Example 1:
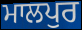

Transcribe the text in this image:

ਮਾਲਪੁਰ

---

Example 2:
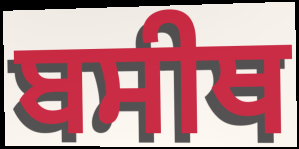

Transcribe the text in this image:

ਬਸੀਥ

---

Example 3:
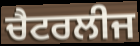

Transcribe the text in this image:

ਚੈਟਰਲੀਜ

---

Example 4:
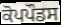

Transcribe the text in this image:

ਕੋਪਪੌਡਸ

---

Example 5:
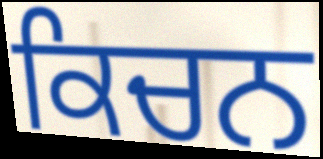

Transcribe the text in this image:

ਕਿਚਨ